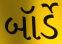
બૉર્ડે